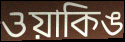
ওয়াকিঙ